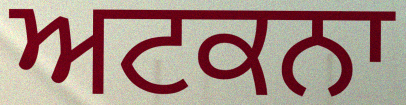
ਅਟਕਨਾ